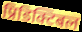
प्रिडिक्टिबल